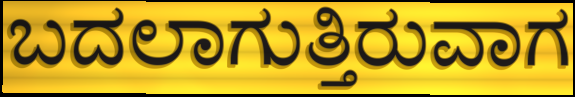
ಬದಲಾಗುತ್ತಿರುವಾಗ